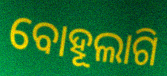
ବୋହୂଲାଗି